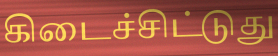
கிடைச்சிட்டுது